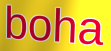
boha